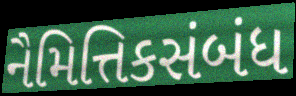
નૈમિત્તિકસંબંધ